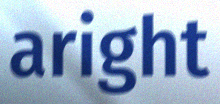
aright